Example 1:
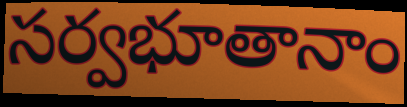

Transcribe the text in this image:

సర్వభూతానాం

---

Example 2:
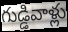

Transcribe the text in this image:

గుడ్డివాళ్లు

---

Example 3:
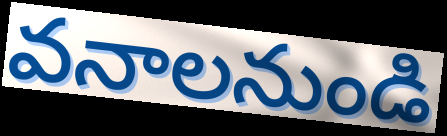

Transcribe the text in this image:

వనాలనుండి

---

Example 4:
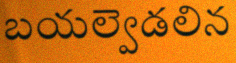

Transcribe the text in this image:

బయల్వెడలిన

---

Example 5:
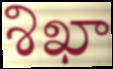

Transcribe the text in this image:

శిఖా